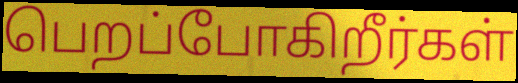
பெறப்போகிறீர்கள்